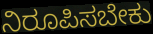
ನಿರೂಪಿಸಬೇಕು